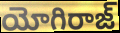
యోగిరాజ్